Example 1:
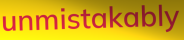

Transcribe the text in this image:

unmistakably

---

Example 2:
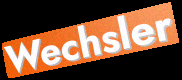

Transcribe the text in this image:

Wechsler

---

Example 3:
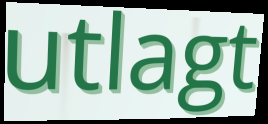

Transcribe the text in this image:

utlagt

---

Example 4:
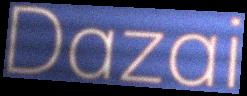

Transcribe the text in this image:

Dazai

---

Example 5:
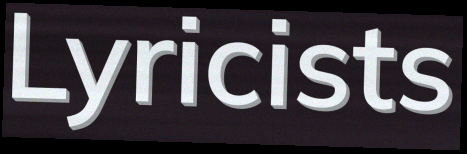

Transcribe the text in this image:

Lyricists